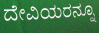
ದೇವಿಯರನ್ನೂ